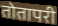
तोतापरी